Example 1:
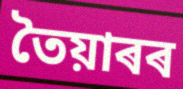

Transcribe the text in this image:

তৈয়াৰৰ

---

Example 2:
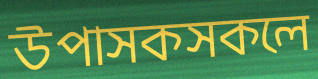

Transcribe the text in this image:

উপাসকসকলে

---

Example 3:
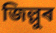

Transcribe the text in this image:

জিল্লুৰ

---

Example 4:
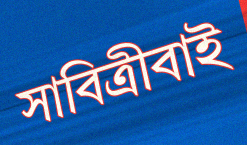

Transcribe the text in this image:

সাবিত্ৰীবাই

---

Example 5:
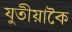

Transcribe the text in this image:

যুতীয়াকৈ